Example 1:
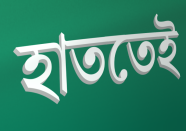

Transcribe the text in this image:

হাততেই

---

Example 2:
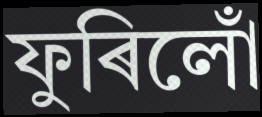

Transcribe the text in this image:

ফুৰিলোঁ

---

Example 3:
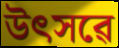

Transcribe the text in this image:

উৎসৱে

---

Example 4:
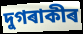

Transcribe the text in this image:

দুগৰাকীৰ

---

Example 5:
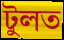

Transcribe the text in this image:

টুলত